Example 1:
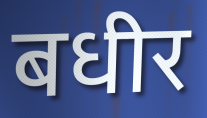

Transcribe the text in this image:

बधीर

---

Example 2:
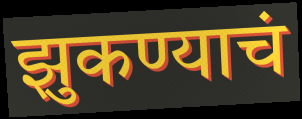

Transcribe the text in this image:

झुकण्याचं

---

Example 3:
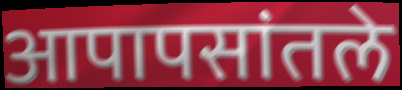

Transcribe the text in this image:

आपापसांतले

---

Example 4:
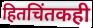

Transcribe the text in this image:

हितचिंतकही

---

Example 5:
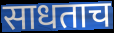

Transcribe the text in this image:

साधताच